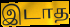
இடாத